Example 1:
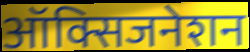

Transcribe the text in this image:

ऑक्सिजनेशन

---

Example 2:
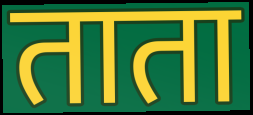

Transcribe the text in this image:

ताता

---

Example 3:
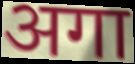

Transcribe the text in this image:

अगा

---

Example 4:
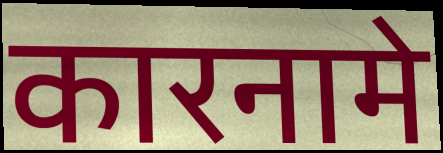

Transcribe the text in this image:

कारनामे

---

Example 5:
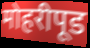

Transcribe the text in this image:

मोहरीपूड